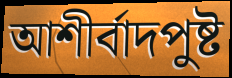
আশীর্বাদপুষ্ট